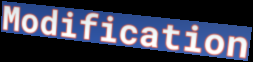
Modification